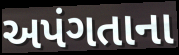
અપંગતાના